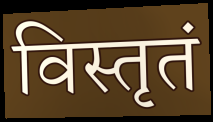
विस्तृतं